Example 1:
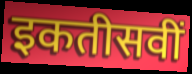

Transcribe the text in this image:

इकतीसवीं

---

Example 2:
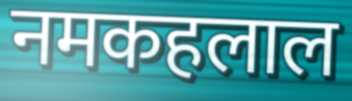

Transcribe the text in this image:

नमकहलाल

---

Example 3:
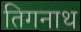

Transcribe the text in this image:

तिगनाथ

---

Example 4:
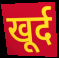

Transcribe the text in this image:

खूर्द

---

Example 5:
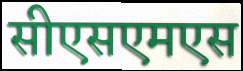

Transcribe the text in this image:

सीएसएमएस